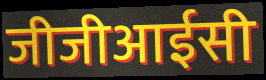
जीजीआईसी